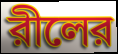
রীলের